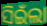
ସିଇଁଲା